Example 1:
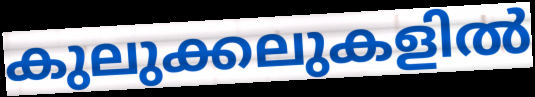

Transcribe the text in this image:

കുലുക്കലുകളിൽ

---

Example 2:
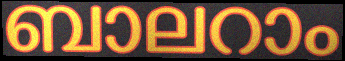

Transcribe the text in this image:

ബാലറാം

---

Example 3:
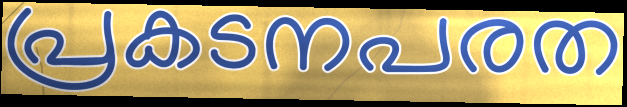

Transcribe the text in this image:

പ്രകടനപരത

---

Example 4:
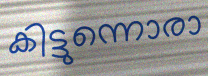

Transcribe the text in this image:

കിട്ടുന്നൊരാ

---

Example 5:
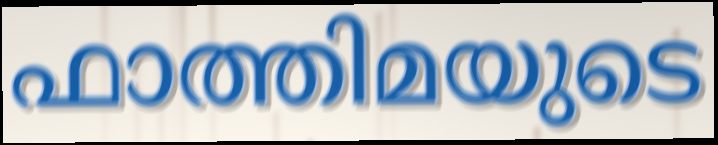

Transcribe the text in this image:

ഫാത്തിമയുടെ